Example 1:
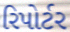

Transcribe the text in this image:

રિપોર્ટર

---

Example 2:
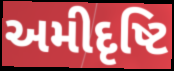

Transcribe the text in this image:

અમીદૃષ્ટિ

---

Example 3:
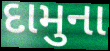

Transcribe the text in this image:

દામુના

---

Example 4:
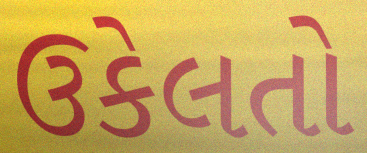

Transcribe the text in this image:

ઉકેલતો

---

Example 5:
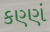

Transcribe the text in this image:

કણ્ણં